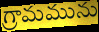
గ్రామమును